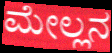
ಮೇಲ್ಲನ